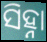
ସିହ୍ନା